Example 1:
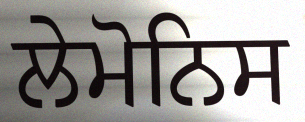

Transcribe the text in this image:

ਲੇਮੋਨਿਸ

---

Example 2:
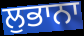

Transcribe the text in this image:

ਲੁਭਾਨਾ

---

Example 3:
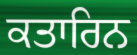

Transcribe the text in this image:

ਕਤਾਰਿਨ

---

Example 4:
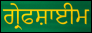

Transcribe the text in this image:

ਗ੍ਰੇਫਸ਼ਾਈਮ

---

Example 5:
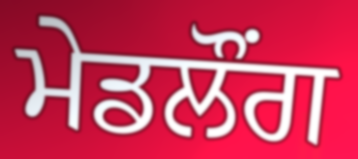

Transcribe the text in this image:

ਮੇਡਲੌਂਗ